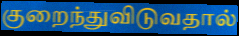
குறைந்துவிடுவதால்